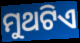
ମୁଥଟିଏ